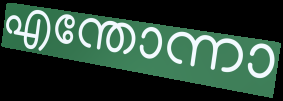
എന്തോന്നാ